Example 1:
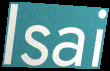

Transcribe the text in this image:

Isai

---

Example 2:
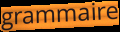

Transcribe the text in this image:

grammaire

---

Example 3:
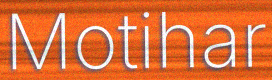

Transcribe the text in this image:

Motihar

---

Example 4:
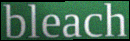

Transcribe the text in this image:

bleach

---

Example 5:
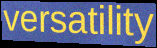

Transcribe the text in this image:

versatility